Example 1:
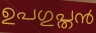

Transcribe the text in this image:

ഉപഗുപ്തൻ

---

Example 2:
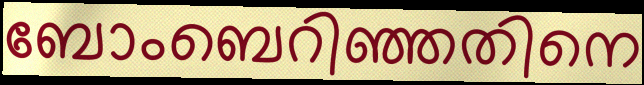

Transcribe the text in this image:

ബോംബെറിഞ്ഞതിനെ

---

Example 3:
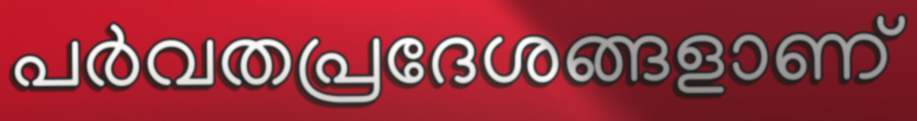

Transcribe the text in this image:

പർവതപ്രദേശങ്ങളാണ്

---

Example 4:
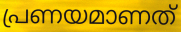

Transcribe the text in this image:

പ്രണയമാണത്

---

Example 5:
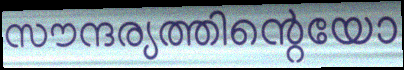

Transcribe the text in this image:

സൗന്ദര്യത്തിന്റെയോ